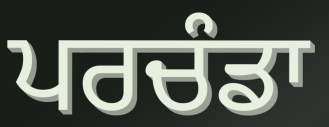
ਪਰਚੰਡਾ